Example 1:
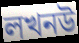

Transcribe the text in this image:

লখনউ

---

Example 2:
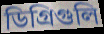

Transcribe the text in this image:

ডিগ্রিগুলি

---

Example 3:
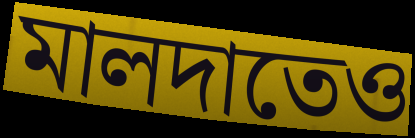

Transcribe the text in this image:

মালদাতেও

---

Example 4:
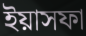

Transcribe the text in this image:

ইয়াসফা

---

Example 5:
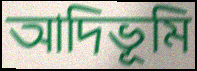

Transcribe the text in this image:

আদিভূমি